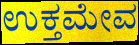
ಉಕ್ತಮೇವ